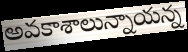
అవకాశాలున్నాయన్న